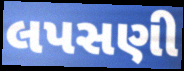
લપસણી